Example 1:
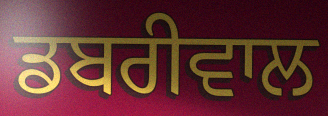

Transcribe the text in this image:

ਡਬਰੀਵਾਲ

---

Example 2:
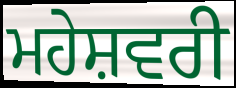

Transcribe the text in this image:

ਮਹੇਸ਼ਵਰੀ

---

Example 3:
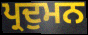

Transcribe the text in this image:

ਪ੍ਰਦੁਮਨ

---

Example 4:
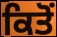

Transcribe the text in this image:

ਕਿਤੋਂ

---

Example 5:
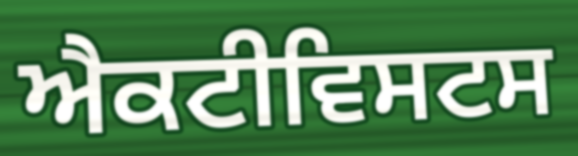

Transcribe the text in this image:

ਐਕਟੀਵਿਸਟਸ